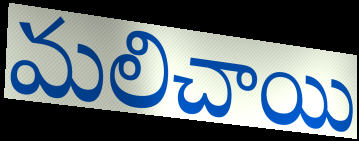
మలిచాయి